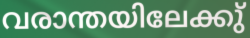
വരാന്തയിലേക്കു്